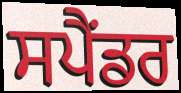
ਸਪੈਂਡਰ